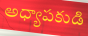
అధ్యాపకుడి